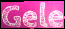
Gele